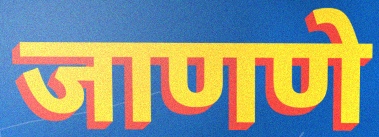
जाणणे